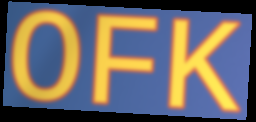
OFK